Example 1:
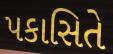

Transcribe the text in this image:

પકાસિતે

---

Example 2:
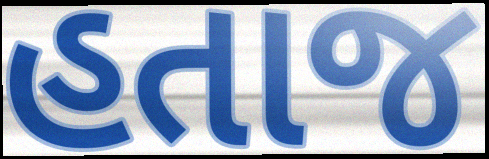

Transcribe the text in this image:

હતાજ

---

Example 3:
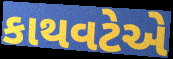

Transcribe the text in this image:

કાથવટેએ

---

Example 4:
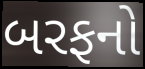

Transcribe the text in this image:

બરફનો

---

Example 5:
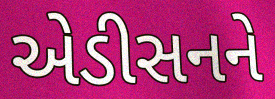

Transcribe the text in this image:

એડીસનને